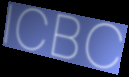
ICBC